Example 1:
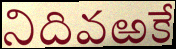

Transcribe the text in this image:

నిదివఱకే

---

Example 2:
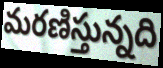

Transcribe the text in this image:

మరణిస్తున్నది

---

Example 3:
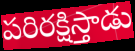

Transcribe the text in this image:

పరిరక్షిస్తాడు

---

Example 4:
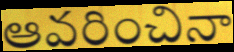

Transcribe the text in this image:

ఆవరించినా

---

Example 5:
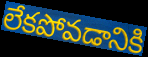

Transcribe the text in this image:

లేకపోవడానికి